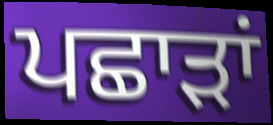
ਪਛਾੜਾਂ